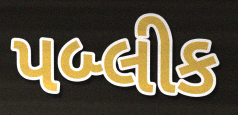
પબ્લીક